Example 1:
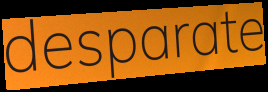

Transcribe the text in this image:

desparate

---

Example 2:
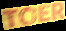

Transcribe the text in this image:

TOER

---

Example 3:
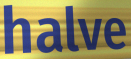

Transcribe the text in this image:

halve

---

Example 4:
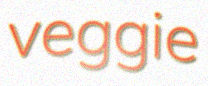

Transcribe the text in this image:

veggie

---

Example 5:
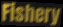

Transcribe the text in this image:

Fishery